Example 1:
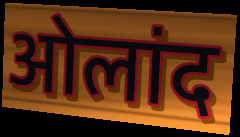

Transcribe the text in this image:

ओलांद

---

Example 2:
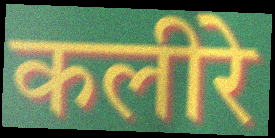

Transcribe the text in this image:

कलीरे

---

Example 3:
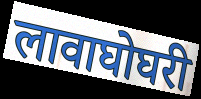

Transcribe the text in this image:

लावाघोघरी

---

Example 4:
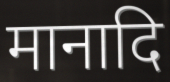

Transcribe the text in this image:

मानादि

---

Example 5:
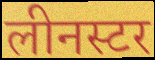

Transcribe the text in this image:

लीनस्टर